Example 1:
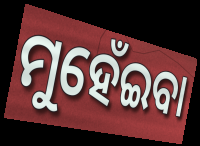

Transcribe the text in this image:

ମୁହେଁଇବା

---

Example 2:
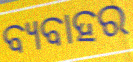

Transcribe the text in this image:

ବ୍ୟବାହର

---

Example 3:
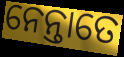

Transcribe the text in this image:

ନେନ୍ତାତେ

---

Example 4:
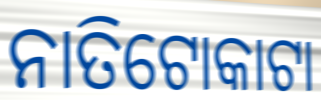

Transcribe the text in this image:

ନାତିଟୋକାଟା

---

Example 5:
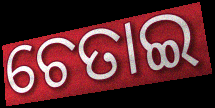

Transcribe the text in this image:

ଚେତାଇ